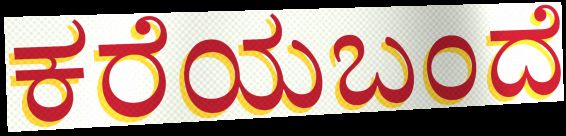
ಕರೆಯಬಂದೆ